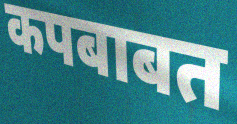
कपबाबत